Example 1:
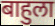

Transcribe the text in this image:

बाहुला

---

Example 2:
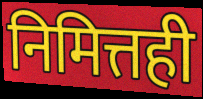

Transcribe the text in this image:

निमित्तही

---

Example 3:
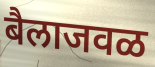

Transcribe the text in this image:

बैलाजवळ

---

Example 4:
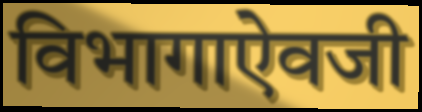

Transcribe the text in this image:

विभागाऐवजी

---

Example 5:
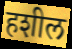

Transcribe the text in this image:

हशील